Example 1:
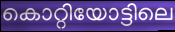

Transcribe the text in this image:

കൊറ്റിയോട്ടിലെ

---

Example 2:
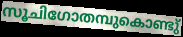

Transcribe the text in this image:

സൂചിഗോതമ്പുകൊണ്ടു്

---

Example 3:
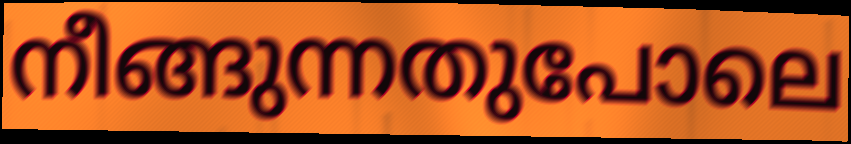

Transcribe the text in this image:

നീങ്ങുന്നതുപോലെ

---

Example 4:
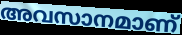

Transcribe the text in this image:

അവസാനമാണ്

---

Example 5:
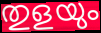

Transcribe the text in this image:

തുളയും